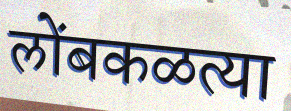
लोंबकळत्या